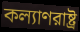
কল্যাণরাষ্ট্র